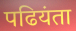
पढियंता